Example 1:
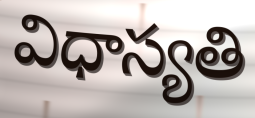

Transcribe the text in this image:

విధాస్యతి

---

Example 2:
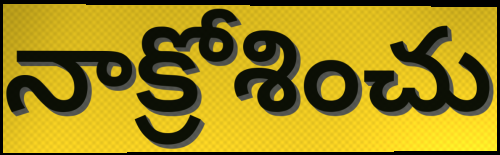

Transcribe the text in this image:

నాక్రోశించు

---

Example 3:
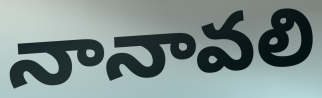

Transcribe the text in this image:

నానావలి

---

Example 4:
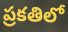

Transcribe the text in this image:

ప్రకతిలో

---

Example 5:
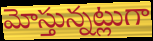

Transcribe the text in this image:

మోస్తున్నట్లుగా